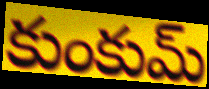
కుంకుమ్